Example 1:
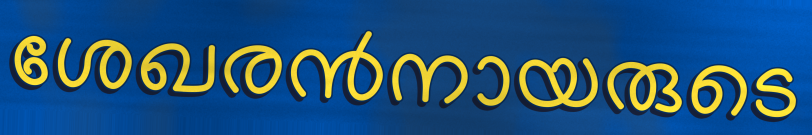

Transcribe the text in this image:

ശേഖരൻനായരുടെ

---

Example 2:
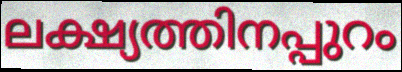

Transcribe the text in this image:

ലക്ഷ്യത്തിനപ്പുറം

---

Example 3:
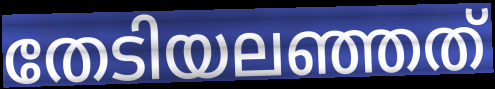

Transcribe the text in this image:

തേടിയലഞ്ഞത്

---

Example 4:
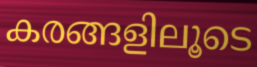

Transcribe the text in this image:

കരങ്ങളിലൂടെ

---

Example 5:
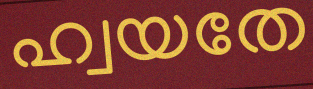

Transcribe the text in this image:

ഹ്വയതേ